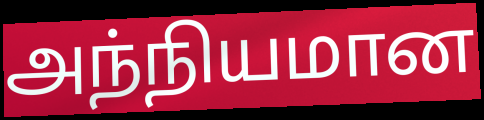
அந்நியமான